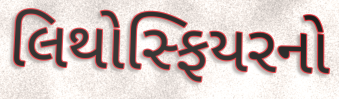
લિથોસ્ફિયરનો